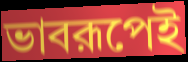
ভাবরূপেই